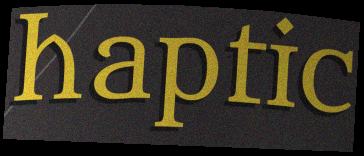
haptic